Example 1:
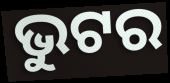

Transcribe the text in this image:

ଭୁଟର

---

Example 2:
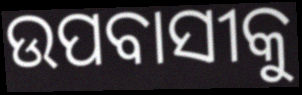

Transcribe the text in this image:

ଉପବାସୀକୁ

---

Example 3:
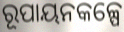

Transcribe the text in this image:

ରୂପାୟନକଳ୍ପେ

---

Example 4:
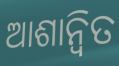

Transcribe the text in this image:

ଆଶାନ୍ବିତ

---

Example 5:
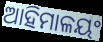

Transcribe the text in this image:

ଆହିମାଳୟଂ